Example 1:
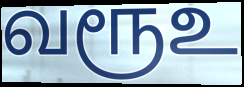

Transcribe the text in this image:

வரூஉ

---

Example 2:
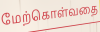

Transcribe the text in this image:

மேற்கொள்வதை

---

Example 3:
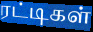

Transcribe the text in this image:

ரட்டிகள்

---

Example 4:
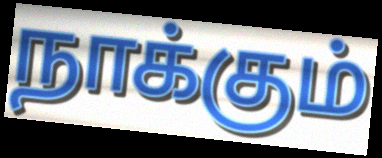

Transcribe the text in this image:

நாக்கும்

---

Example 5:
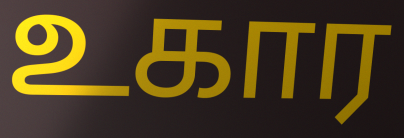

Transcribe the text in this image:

உகார